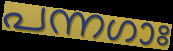
പന്നഗാഃ